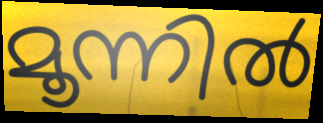
മൂന്നിൽ